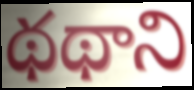
థథాని